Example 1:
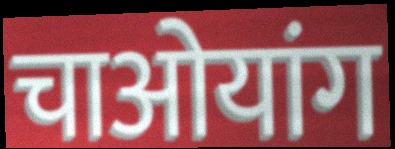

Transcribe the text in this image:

चाओयांग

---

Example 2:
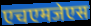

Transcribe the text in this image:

एचएमजेएस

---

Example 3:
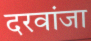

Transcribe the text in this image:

दरवांजा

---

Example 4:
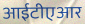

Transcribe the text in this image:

आईटीएआर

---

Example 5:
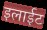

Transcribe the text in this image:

इलाईट